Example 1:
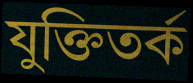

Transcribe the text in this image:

যুক্তিতর্ক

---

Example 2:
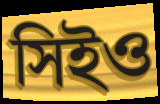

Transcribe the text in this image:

সিইও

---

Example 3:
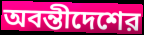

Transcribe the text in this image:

অবন্তীদেশের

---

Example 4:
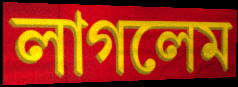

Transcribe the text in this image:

লাগলেম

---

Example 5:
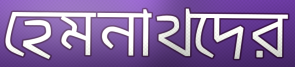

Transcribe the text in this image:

হেমনাথদের